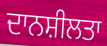
ਦਾਨਸ਼ੀਲਤਾ